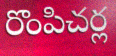
రొంపిచర్ల